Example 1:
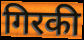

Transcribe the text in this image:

गिरकी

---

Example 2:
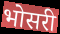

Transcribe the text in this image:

भोसरी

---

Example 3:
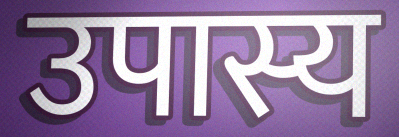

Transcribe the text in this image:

उपास्य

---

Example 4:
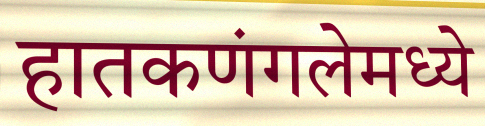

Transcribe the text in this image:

हातकणंगलेमध्ये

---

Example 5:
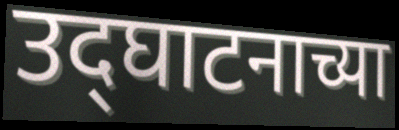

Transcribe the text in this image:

उद्घाटनाच्या